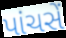
પાંચસેં